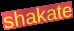
shakate